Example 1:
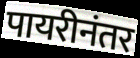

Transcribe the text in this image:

पायरीनंतर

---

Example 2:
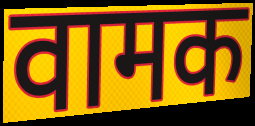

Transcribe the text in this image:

वामक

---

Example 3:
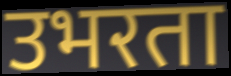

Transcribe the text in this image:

उभरता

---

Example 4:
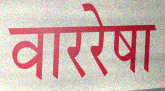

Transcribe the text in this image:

वाररेषा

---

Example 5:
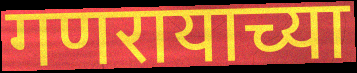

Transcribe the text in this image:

गणरायाच्या